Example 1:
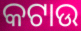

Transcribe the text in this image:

କଟାଉ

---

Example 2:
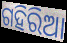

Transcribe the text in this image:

ଗହିରିଆ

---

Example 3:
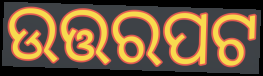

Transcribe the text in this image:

ଉତ୍ତରପଟ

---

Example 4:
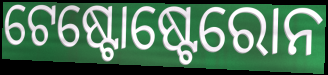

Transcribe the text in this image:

ଟେଷ୍ଟୋଷ୍ଟେରୋନ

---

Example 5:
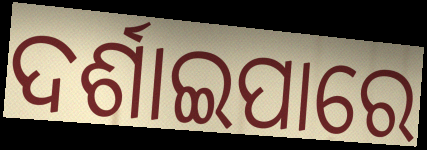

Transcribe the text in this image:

ଦର୍ଶାଇପାରେ